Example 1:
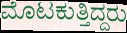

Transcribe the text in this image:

ಮೊಟಕುತ್ತಿದ್ದರು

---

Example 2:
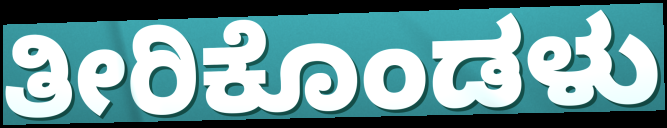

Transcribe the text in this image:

ತೀರಿಕೊಂಡಳು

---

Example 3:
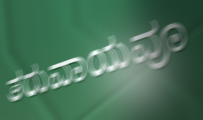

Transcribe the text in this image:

ತರುವಾಯವೂ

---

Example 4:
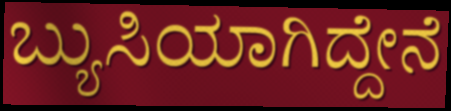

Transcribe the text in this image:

ಬ್ಯುಸಿಯಾಗಿದ್ದೇನೆ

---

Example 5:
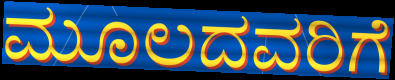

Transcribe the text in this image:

ಮೂಲದವರಿಗೆ